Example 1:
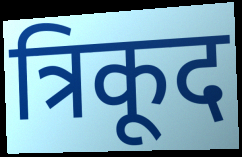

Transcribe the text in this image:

त्रिकूद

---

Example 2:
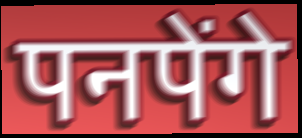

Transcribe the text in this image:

पनपेंगे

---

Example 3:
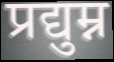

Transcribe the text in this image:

प्रद्युम्न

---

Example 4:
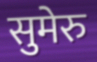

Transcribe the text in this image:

सुमेरु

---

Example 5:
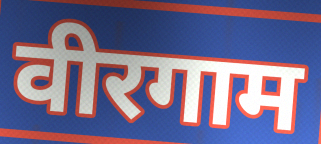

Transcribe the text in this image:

वीरगाम